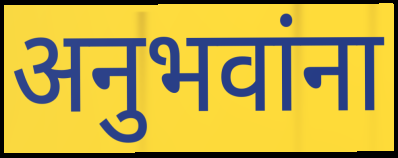
अनुभवांना